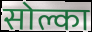
सोल्का